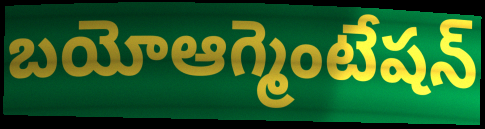
బయోఆగ్మెంటేషన్